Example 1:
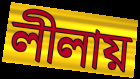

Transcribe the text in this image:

লীলায়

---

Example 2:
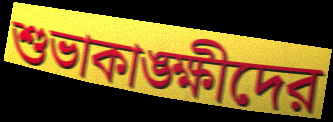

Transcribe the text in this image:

শুভাকাঙ্ক্ষীদের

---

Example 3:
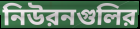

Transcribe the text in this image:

নিউরনগুলির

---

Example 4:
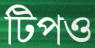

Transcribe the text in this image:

টিপও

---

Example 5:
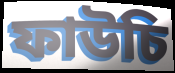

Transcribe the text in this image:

ফাউচি